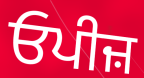
ਓਪੀਜ਼